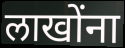
लाखोंना